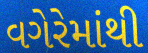
વગેરેમાંથી